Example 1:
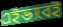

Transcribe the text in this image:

এইভাবেই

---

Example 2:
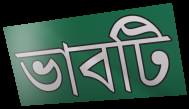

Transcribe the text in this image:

ভাবটি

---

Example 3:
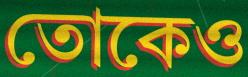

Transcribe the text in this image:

তোকেও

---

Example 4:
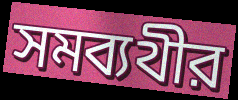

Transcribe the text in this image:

সমব্যথীর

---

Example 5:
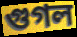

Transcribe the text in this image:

গুগল